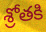
శ్రోతకి